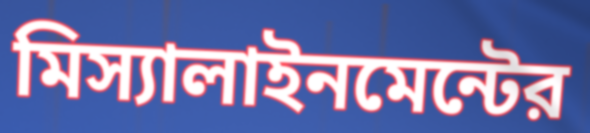
মিস্যালাইনমেন্টের